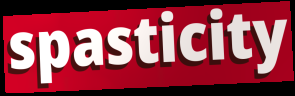
spasticity